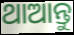
ଥାଆନ୍ତୁ